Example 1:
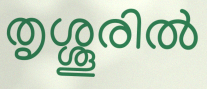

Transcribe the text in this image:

തൃശ്ശൂരിൽ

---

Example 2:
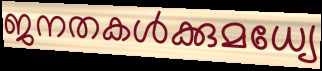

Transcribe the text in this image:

ജനതകൾക്കുമധ്യേ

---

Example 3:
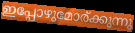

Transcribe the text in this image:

ഇപ്പോഴുമോര്ക്കുന്നു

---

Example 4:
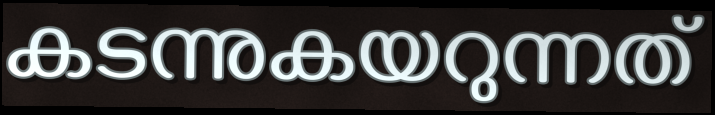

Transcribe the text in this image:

കടന്നുകയറുന്നത്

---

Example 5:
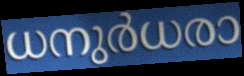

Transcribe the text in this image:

ധനുർധരാ